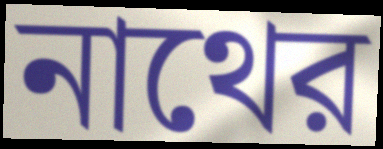
নাথের